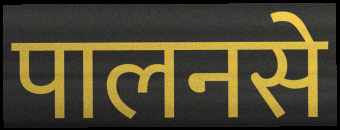
पालनसे